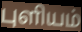
புளியம்